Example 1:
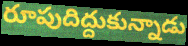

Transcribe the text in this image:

రూపుదిద్దుకున్నాడు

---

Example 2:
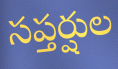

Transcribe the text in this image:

సప్తర్షుల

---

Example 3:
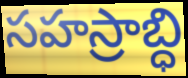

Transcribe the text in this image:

సహస్రాబ్ధి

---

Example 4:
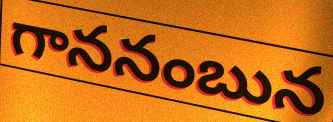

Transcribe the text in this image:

గాననంబున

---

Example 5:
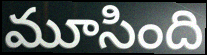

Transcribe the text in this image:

మూసింది